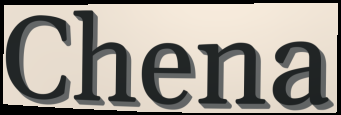
Chena